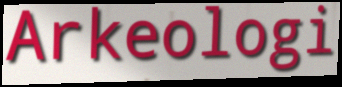
Arkeologi